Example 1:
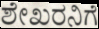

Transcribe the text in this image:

ಶೇಖರನಿಗೆ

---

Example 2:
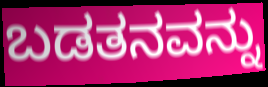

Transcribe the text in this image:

ಬಡತನವನ್ನು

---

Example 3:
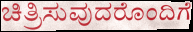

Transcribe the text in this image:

ಚಿತ್ರಿಸುವುದರೊಂದಿಗೆ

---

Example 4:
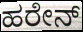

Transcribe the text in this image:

ಹರೇನ್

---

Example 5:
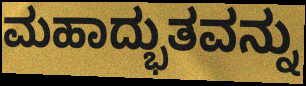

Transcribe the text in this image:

ಮಹಾದ್ಭುತವನ್ನು